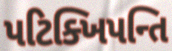
પટિક્ખિપન્તિ